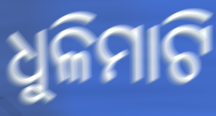
ଧୁଳିମାଟି